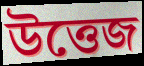
উত্তেজ